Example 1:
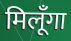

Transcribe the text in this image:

मिलूँगा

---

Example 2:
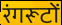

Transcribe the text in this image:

रंगरूटों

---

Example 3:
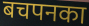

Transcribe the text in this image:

बचपनका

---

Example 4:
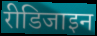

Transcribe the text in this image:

रीडिजाइन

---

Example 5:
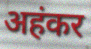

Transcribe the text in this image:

अहंकर